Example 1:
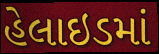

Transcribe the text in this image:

હેલાઇડમાં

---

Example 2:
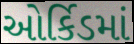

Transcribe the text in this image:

ઓર્કિડમાં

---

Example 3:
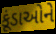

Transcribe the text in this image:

કૂંડાઓને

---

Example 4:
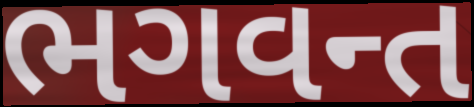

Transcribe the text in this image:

ભગવન્ત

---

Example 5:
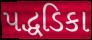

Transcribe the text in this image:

પદ્ધડિકા